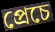
প্ৰেচে